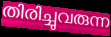
തിരിച്ചുവരുന്ന